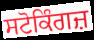
ਸਟੋਕਿੰਗਜ਼